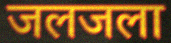
जलजला